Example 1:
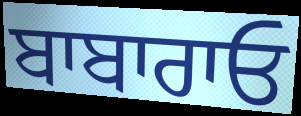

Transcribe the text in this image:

ਬਾਬਾਰਾਓ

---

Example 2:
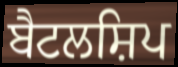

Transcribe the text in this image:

ਬੈਟਲਸ਼ਿਪ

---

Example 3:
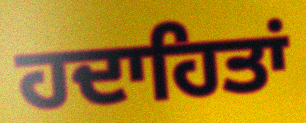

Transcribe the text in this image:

ਹਦਾਹਿਤਾਂ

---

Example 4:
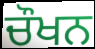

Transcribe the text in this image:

ਚੌਖਨ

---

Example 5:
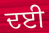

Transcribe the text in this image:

ਦਈ